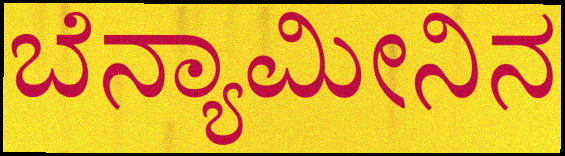
ಬೆನ್ಯಾಮೀನಿನ